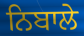
ਨਿਬਾਲੇ